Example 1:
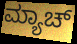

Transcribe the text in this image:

ಮ್ಯಾಚ್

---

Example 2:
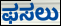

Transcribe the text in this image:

ಫಸಲು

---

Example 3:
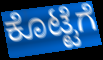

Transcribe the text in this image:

ಕೊಟ್ಟೆಗೆ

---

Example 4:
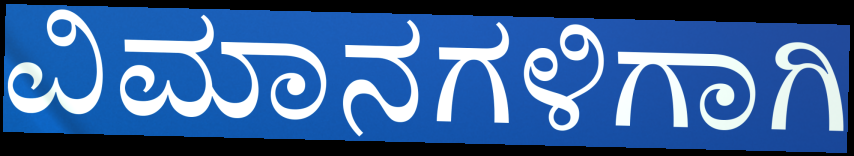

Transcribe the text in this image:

ವಿಮಾನಗಳಿಗಾಗಿ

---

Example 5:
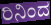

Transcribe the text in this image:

ರಿನಿಂದ